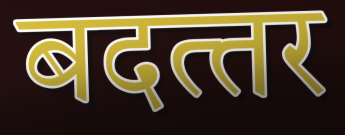
बदत्‍तर